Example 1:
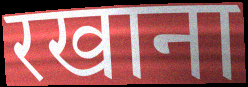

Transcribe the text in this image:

रखाना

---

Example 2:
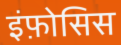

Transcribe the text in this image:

इंफ़ोसिस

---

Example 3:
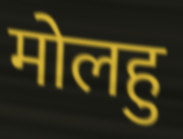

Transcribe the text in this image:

मोलहु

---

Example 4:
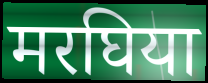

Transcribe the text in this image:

मरघिया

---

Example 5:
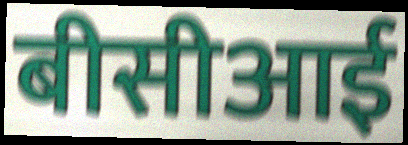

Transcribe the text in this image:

बीसीआई